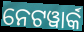
ନେଟୱାର୍କ